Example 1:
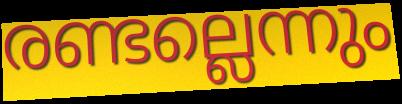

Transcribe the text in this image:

രണ്ടല്ലെന്നും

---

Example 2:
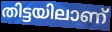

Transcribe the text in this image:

തിട്ടയിലാണ്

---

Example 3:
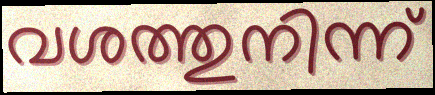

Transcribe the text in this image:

വശത്തുനിന്ന്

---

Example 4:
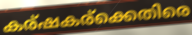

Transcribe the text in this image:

കര്ഷകര്ക്കെതിരെ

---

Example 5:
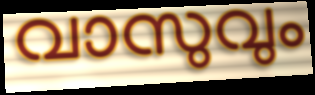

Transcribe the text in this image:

വാസുവും